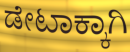
ಡೇಟಾಕ್ಕಾಗಿ